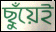
ছুঁয়েই